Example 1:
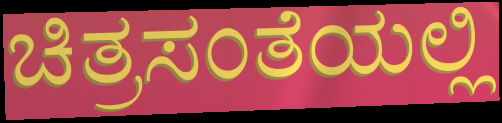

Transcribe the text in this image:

ಚಿತ್ರಸಂತೆಯಲ್ಲಿ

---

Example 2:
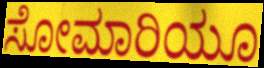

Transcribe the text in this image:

ಸೋಮಾರಿಯೂ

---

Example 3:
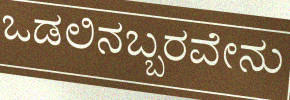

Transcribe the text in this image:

ಒಡಲಿನಬ್ಬರವೇನು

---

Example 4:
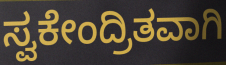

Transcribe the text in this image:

ಸ್ವಕೇಂದ್ರಿತವಾಗಿ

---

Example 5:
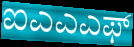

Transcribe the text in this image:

ಐಎಎಎಫ್